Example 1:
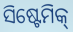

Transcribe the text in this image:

ସିଷ୍ଟେମିକ୍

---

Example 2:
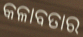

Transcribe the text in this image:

କଳାବତାର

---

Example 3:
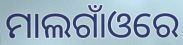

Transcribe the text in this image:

ମାଲଗାଁଓରେ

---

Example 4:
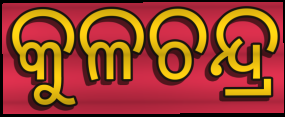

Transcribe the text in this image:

କୁଳଚନ୍ଦ୍ର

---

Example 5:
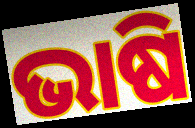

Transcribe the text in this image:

ଭାଷି